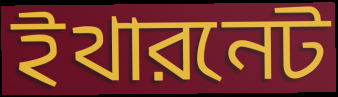
ইথারনেট